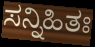
ಸನ್ನಿಹಿತಃ